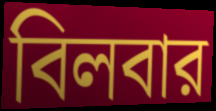
বিলবার